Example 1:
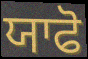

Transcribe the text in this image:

ਯਾਫੋ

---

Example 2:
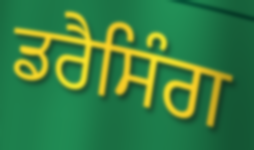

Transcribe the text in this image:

ਡਰੈਸਿੰਗ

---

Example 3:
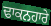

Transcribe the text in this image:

ਢਾਕਨਹਾਰੇ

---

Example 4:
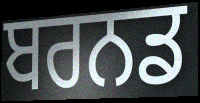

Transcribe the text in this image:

ਬਰਨਡ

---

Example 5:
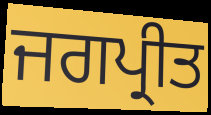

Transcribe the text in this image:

ਜਗਪ੍ਰੀਤ